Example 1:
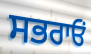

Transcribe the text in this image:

ਸਭਰਾਓਂ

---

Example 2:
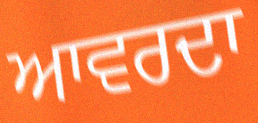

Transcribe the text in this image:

ਆਵਰਦਾ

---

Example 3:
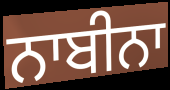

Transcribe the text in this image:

ਨਾਬੀਨਾ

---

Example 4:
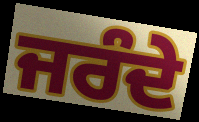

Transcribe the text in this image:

ਜਰੰਦੇ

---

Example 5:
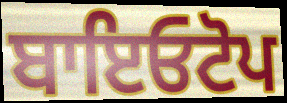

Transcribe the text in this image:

ਬਾਇਓਟੋਪ